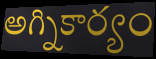
అగ్నికార్యం